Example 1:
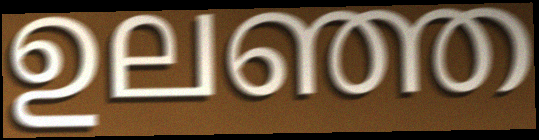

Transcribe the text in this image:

ഉലഞ്ഞ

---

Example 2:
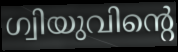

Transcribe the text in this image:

ഗ്വിയുവിന്റെ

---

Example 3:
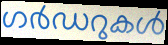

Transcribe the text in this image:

ഗർഡറുകൾ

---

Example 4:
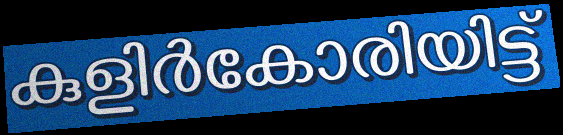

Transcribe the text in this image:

കുളിർകോരിയിട്ട്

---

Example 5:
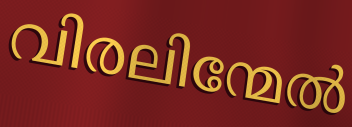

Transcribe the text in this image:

വിരലിന്മേൽ